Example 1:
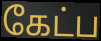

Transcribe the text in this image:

கேட்ப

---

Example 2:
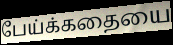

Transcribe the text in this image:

பேய்க்கதையை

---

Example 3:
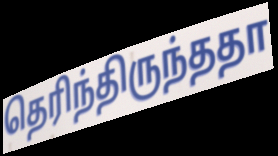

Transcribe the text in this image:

தெரிந்திருந்ததா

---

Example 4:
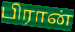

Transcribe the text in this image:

பிரான்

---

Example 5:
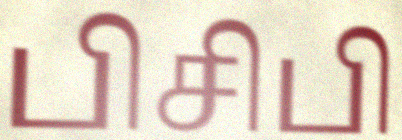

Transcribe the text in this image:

பிசிபி